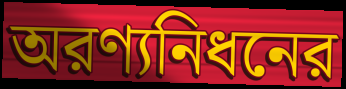
অরণ্যনিধনের